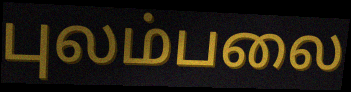
புலம்பலை